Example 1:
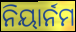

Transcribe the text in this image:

ନିୟାର୍ନମ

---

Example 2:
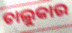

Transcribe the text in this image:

ତାଲୁକାର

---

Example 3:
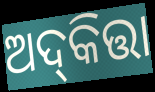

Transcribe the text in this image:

ଅଦ୍‌କିତ୍ତା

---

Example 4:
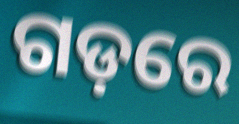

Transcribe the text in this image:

ଗଡ଼ରେ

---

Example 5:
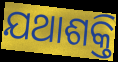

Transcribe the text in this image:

ଯଥାଶକ୍ତି